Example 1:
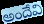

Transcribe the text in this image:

అందేవి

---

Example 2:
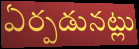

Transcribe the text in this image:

ఏర్పడునట్లు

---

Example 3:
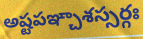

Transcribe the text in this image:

అష్టపఞ్చాశస్సర్గః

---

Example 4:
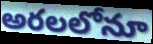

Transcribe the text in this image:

అరలలోనూ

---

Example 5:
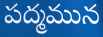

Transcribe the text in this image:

పద్మమున